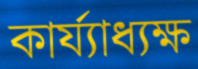
কার্য্যাধ্যক্ষ